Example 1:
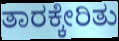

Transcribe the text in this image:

ತಾರಕ್ಕೇರಿತು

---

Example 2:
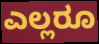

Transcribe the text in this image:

ಎಲ್ಲರೂ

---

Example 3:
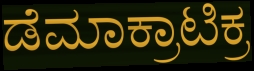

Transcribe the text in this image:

ಡೆಮಾಕ್ರಾಟಿಕ್ರ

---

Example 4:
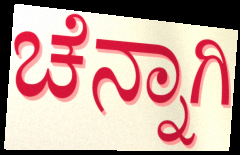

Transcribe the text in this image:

ಚೆನ್ನಾಗಿ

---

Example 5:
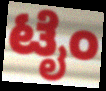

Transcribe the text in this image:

ಟೈಂ